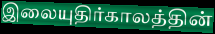
இலையுதிர்காலத்தின்